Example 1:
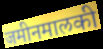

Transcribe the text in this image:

जमीनमालकी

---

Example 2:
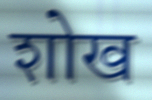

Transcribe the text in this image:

शोख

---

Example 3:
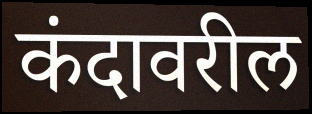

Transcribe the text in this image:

कंदावरील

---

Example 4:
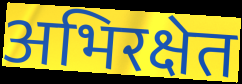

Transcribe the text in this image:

अभिरक्षेत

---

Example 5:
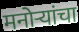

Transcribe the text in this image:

मनोर्‍यांचा